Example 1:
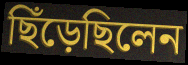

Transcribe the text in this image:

ছিঁড়েছিলেন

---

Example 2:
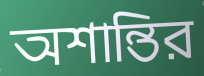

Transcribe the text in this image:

অশান্তির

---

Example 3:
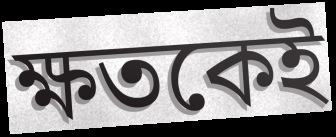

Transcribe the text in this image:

ক্ষতকেই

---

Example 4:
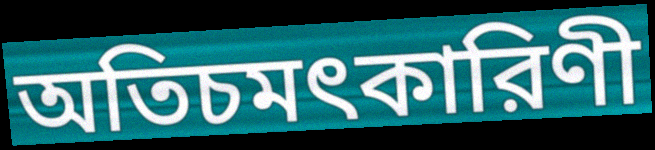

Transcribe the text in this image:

অতিচমৎকারিণী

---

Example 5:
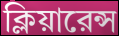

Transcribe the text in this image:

ক্লিয়ারেন্স